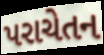
પરાચેતન